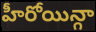
హీరోయిన్గా